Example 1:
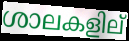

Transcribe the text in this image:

ശാലകളില്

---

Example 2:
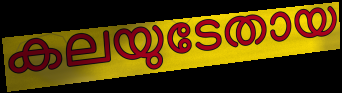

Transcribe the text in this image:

കലയുടേതായ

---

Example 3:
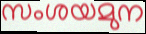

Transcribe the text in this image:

സംശയമുന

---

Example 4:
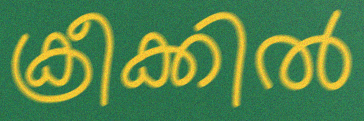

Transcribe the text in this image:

ക്രീക്കിൽ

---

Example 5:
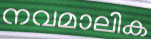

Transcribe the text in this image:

നവമാലിക